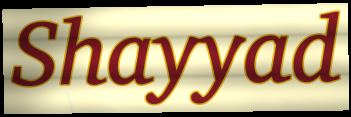
Shayyad